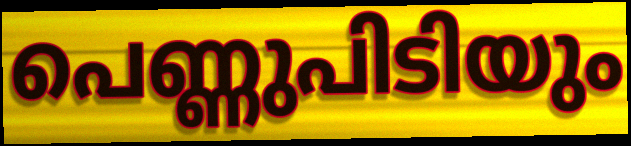
പെണ്ണുപിടിയും